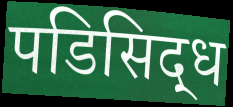
पडिसिद्ध